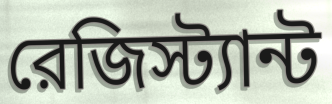
রেজিস্ট্যান্ট